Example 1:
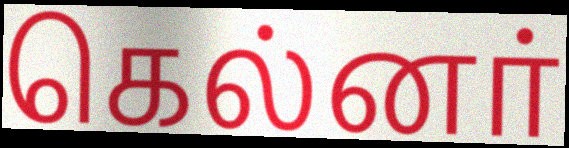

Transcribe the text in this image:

கெல்னர்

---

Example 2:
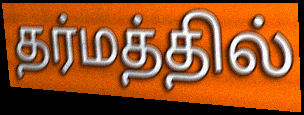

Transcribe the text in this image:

தர்மத்தில்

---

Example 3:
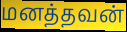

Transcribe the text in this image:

மனத்தவன்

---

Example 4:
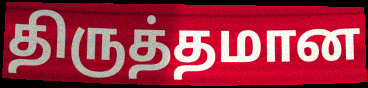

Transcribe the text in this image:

திருத்தமான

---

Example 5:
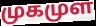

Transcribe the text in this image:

முகமுள